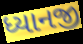
ધ્યાનજી